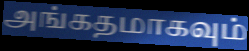
அங்கதமாகவும்